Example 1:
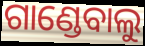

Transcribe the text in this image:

ଗାଣ୍ଡେବାଲୁ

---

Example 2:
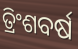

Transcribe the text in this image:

ତ୍ରିଂଶବର୍ଷ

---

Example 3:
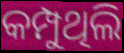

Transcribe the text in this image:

କମ୍ପୁଥିଲି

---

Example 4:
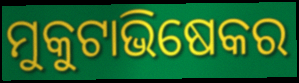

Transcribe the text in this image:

ମୁକୁଟାଭିଷେକର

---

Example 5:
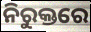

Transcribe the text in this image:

ନିରୁକ୍ତରେ